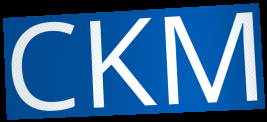
CKM